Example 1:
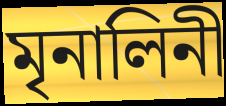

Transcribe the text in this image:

মৃনালিনী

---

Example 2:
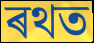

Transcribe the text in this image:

ৰথত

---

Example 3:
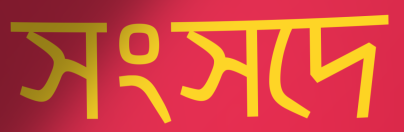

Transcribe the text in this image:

সংসদে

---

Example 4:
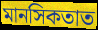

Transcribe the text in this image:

মানসিকতাত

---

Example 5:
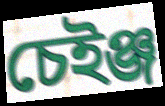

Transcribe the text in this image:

চেইঞ্জ